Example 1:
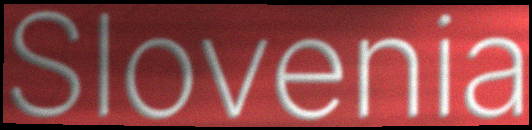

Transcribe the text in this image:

Slovenia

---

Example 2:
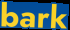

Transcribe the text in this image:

bark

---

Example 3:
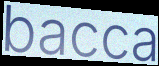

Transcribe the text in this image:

bacca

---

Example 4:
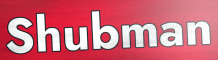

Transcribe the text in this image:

Shubman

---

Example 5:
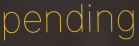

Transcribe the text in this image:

pending